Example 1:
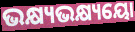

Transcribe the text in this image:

ଭକ୍ଷ୍ୟଭକ୍ଷ୍ୟୟୋ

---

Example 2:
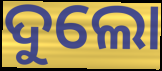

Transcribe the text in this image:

ଦୁଲୋ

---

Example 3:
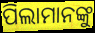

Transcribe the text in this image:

ପିଲାମାନଙ୍କୁ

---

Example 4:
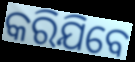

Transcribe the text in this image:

କରିଯିବେ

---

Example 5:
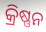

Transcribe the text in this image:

କ୍ରିଷ୍ଣନ